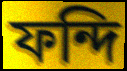
ফন্দি